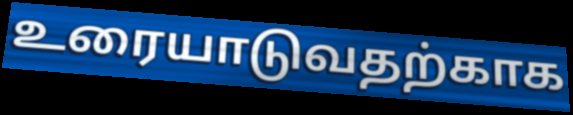
உரையாடுவதற்காக